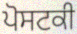
ਪੋਸਟਕੀ